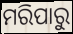
ମରିପାରୁ